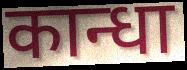
कान्धा